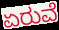
ಏರುವೆ